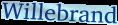
Willebrand